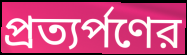
প্রত্যর্পণের